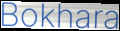
Bokhara